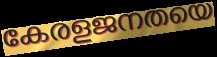
കേരളജനതയെ